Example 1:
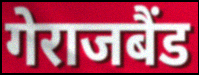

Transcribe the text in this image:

गेराजबैंड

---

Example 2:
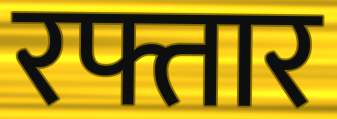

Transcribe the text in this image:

रफ्तार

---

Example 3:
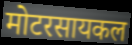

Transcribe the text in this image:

मोटरसायकल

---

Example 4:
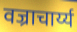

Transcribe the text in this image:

वज्राचार्य्य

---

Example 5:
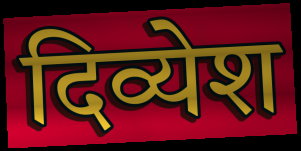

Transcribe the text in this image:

दिव्येश